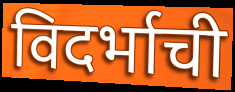
विदर्भाची